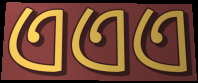
ଏଏଏ